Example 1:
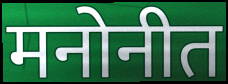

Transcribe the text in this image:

मनोनीत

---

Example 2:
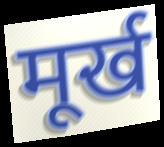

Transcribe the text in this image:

मूर्ख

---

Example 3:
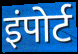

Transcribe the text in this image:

इंपोर्ट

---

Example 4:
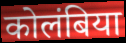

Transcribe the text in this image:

कोलंबिया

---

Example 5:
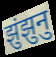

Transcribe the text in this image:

झुंझुनु